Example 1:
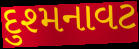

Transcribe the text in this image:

દુશ્મનાવટ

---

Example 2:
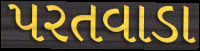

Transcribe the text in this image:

પરતવાડા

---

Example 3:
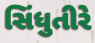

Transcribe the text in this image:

સિંધુતીરે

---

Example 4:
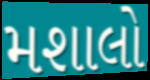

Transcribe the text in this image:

મશાલો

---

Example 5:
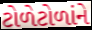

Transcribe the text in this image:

ટોળેટોળાંને